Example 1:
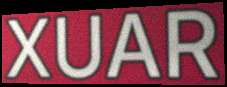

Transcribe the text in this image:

XUAR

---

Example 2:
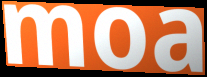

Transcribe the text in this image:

moa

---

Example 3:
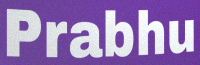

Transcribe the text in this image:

Prabhu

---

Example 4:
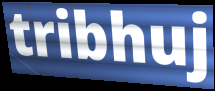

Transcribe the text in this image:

tribhuj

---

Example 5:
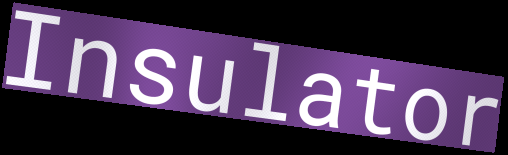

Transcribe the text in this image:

Insulator